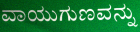
ವಾಯುಗುಣವನ್ನು